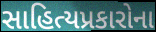
સાહિત્યપ્રકારોના